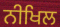
ਨੀਖਿਲ